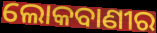
ଲୋକବାଣୀର